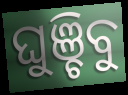
ଘୁଞ୍ଚିବୁ